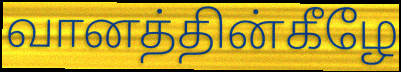
வானத்தின்கீழே